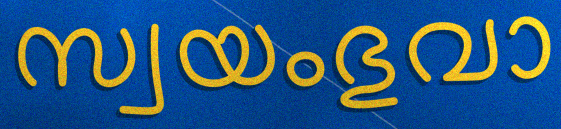
സ്വയംഭുവാ